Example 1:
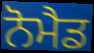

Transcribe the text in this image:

ਨੋਮੈਡ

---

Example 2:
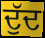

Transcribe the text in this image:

ਦੁੱਦ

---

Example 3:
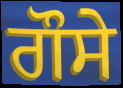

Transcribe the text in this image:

ਗੌਸੇ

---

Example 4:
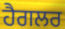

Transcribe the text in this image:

ਹੈਗਲਰ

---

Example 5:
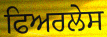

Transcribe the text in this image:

ਫਿਅਰਲੇਸ